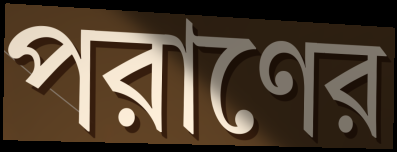
পরাণের